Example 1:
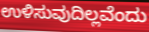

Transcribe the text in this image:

ಉಳಿಸುವುದಿಲ್ಲವೆಂದು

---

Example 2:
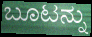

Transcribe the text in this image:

ಬೂಟನ್ನು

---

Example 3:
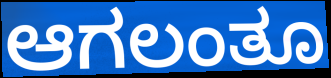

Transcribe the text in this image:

ಆಗಲಂತೂ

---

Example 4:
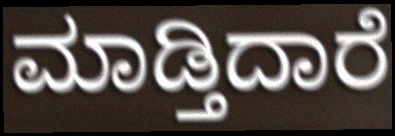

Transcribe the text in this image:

ಮಾಡ್ತಿದಾರೆ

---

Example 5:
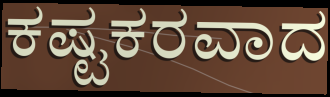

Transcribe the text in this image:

ಕಷ್ಟಕರವಾದ